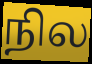
நில